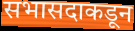
सभासदाकडून